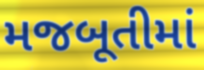
મજબૂતીમાં